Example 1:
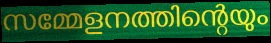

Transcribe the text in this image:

സമ്മേളനത്തിന്റെയും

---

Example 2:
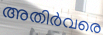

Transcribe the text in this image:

അതിർവരെ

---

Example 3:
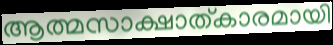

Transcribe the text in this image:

ആത്മസാക്ഷാത്കാരമായി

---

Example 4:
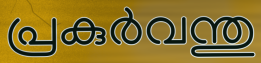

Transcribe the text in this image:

പ്രകുർവന്തു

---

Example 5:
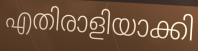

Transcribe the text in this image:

എതിരാളിയാക്കി